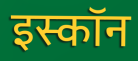
इस्कॉन